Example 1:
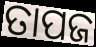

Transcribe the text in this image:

ତାପଜ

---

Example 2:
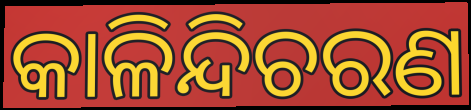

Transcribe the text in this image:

କାଳିନ୍ଦିଚରଣ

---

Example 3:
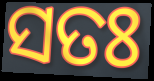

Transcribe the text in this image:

ସତଃ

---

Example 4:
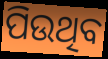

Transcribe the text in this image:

ପିଉଥିବ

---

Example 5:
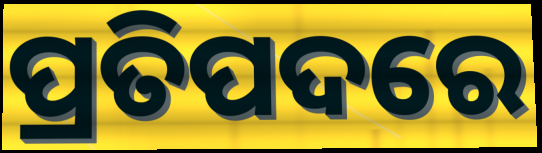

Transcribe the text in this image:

ପ୍ରତିପଦରେ